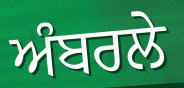
ਅੰਬਰਲੇ